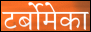
टर्बोमेका